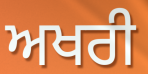
ਅਖਰੀ